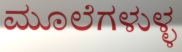
ಮೂಲೆಗಳುಳ್ಳ